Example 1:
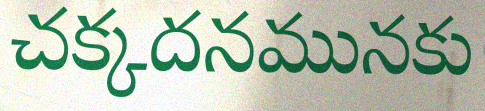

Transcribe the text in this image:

చక్కదనమునకు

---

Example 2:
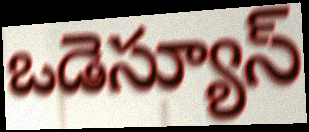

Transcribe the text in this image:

ఒడెస్యూస్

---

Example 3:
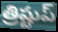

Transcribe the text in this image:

త్రిష్టుప్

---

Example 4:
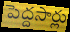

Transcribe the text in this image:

పెద్దసార్లు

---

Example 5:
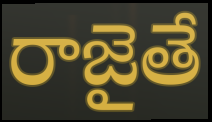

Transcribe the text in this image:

రాజైతే